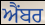
ਐਂਬਰ